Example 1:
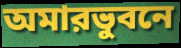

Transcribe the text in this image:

অমারভুবনে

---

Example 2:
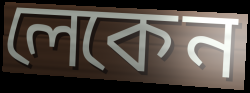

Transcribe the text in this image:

লেকেন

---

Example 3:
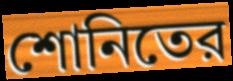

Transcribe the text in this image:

শোনিতের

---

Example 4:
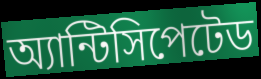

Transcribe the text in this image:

অ্যান্টিসিপেটেড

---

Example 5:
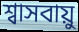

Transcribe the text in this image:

শ্বাসবায়ু